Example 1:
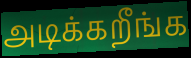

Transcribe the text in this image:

அடிக்கறீங்க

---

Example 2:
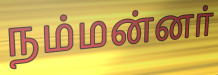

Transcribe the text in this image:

நம்மன்னர்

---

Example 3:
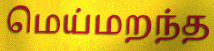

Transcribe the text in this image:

மெய்மறந்த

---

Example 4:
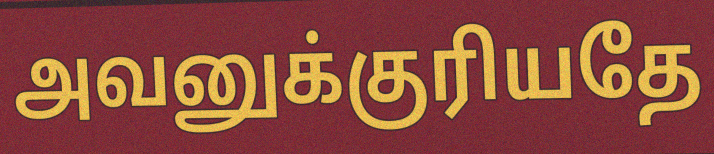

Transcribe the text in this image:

அவனுக்குரியதே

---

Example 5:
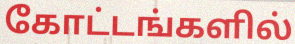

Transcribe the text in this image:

கோட்டங்களில்